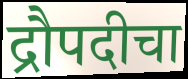
द्रौपदीचा